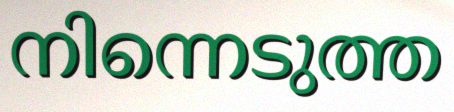
നിന്നെടുത്ത